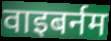
वाइबर्नम